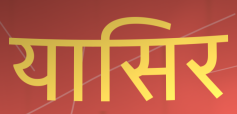
यासिर